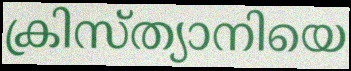
ക്രിസ്ത്യാനിയെ